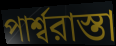
পার্শ্বরাস্তা